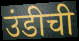
उंडीची